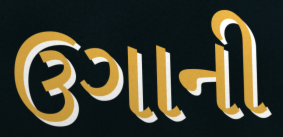
ઉગાની